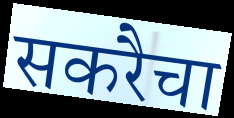
सकरैचा